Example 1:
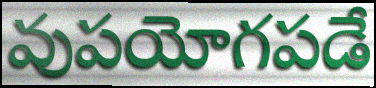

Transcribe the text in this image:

వుపయోగపడే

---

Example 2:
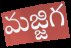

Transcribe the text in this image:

మజ్జిగ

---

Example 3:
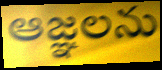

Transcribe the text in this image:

ఆజ్ఞలను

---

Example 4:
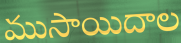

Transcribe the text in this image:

ముసాయిదాల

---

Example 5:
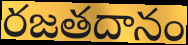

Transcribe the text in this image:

రజతదానం